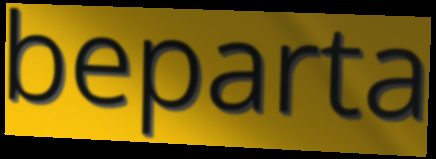
beparta